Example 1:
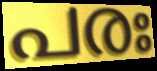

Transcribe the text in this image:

പരഃ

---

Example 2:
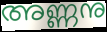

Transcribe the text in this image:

അണ്ണനു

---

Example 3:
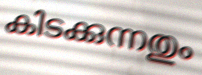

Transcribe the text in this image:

കിടക്കുന്നതും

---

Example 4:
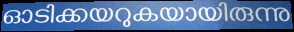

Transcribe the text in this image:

ഓടിക്കയറുകയായിരുന്നു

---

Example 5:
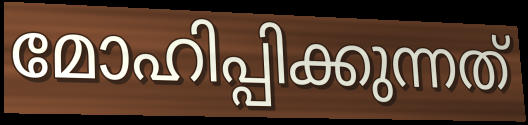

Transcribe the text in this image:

മോഹിപ്പിക്കുന്നത്